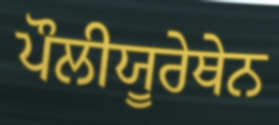
ਪੌਲੀਯੂਰੇਥੇਨ